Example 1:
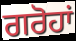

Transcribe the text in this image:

ਗਰੋਹਾਂ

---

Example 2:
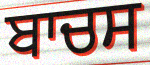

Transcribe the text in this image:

ਬਾਚਸ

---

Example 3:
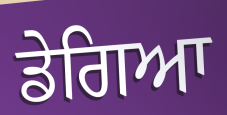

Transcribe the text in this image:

ਡੇਗਿਆ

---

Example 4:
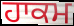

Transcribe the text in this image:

ਹਾਕਮ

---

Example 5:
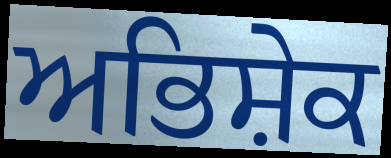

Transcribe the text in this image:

ਅਭਿਸ਼ੇਕ